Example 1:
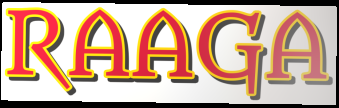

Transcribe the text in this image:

RAAGA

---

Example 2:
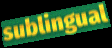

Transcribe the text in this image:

sublingual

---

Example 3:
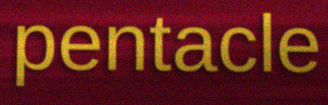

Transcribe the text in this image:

pentacle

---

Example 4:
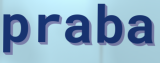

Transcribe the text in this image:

praba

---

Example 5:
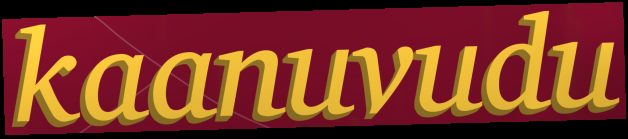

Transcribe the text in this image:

kaanuvudu